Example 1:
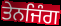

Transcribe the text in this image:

ਤੇਨਜਿੰਗ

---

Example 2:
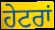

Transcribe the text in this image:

ਹੇਟਰਾਂ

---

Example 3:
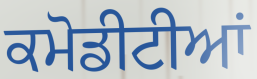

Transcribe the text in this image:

ਕਮੋਡੀਟੀਆਂ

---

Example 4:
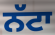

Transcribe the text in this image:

ਨੱਟਾ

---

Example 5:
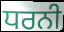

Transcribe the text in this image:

ਧਰਨੀ